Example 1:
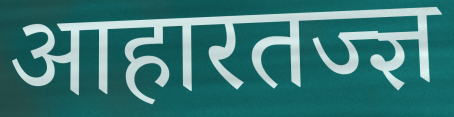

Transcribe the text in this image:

आहारतज्ज्ञ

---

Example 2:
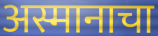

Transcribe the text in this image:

अस्मानाचा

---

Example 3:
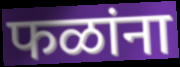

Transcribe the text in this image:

फळांना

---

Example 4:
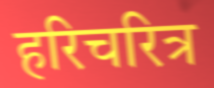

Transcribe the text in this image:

हरिचरित्र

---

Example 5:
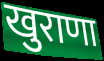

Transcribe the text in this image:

खुराणा